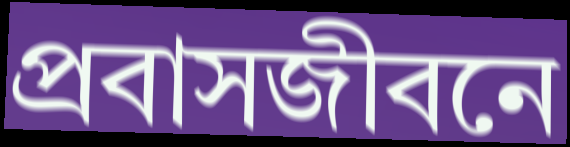
প্রবাসজীবনে